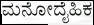
ಮನೋದೈಹಿಕ